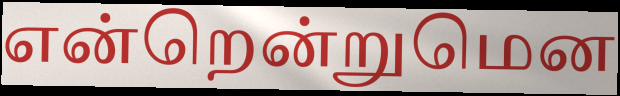
என்றென்றுமென